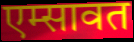
एम्सावत